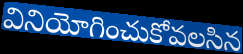
వినియోగించుకోవలసిన